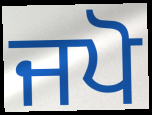
ਜਪੋ